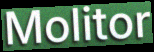
Molitor